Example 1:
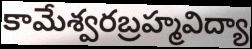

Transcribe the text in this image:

కామేశ్వరబ్రహ్మవిద్యా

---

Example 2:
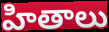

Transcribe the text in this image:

హితాలు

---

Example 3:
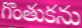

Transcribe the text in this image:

గొంతుకను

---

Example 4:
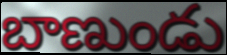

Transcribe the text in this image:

బాణుండు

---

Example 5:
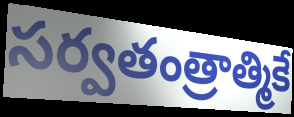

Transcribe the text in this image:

సర్వతంత్రాత్మికే